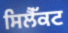
ਸਿਲੈੱਕਟ